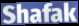
Shafak